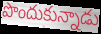
పొందుకున్నాడు